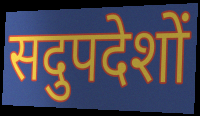
सदुपदेशों